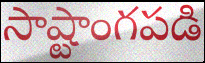
సాష్టాంగపడి